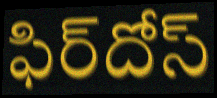
ఫిర్‌దోస్